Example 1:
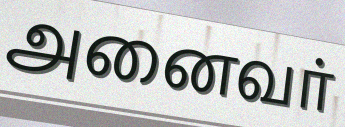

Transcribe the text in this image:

அனைவர்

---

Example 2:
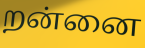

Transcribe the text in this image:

றன்னை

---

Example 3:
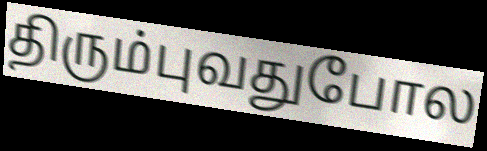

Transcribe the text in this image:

திரும்புவதுபோல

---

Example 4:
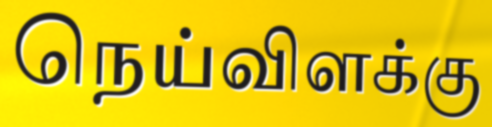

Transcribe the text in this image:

நெய்விளக்கு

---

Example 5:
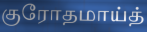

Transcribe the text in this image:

குரோதமாய்த்